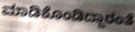
ಮಾಡಿಕೊಂಡಿದ್ದಾರಂತೆ